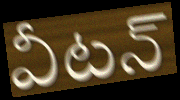
వీటన్